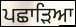
ਪਛਾੜਿਆ